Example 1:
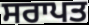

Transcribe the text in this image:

ਸਰਾਪਤ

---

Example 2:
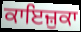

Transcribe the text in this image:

ਕਾਇਜ਼ੁਕਾ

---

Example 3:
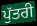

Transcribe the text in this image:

ਪੁੱਤਰੀ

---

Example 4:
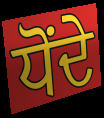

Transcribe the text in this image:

ਧੋਂਦੇ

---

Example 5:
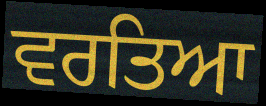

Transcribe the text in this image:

ਵਰਤਿਆ